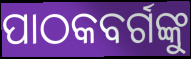
ପାଠକବର୍ଗଙ୍କୁ